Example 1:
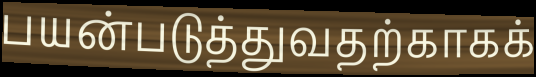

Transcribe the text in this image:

பயன்படுத்துவதற்காகக்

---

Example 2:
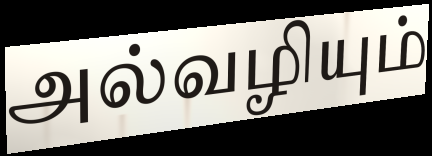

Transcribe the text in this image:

அல்வழியும்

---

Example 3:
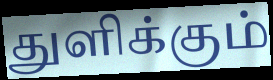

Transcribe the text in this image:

துளிக்கும்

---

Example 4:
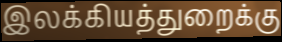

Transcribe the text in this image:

இலக்கியத்துறைக்கு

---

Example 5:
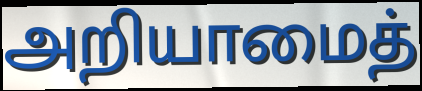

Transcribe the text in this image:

அறியாமைத்